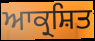
ਆਕ੍ਰਸ਼ਿਤ